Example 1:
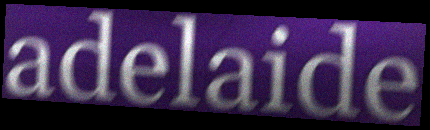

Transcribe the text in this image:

adelaide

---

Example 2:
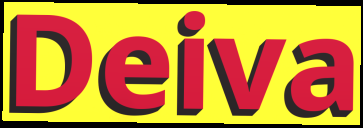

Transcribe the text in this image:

Deiva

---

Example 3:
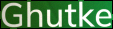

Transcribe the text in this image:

Ghutke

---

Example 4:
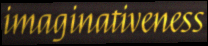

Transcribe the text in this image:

imaginativeness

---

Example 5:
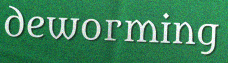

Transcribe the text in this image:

deworming